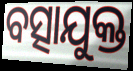
ବତ୍ସାଯୁକ୍ତ